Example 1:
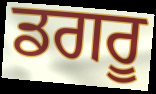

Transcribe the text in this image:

ਡਗਰੂ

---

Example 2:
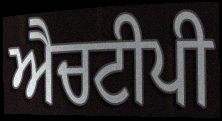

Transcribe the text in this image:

ਐਚਟੀਪੀ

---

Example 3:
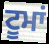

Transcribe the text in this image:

ਟੂਮਾਂ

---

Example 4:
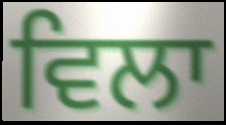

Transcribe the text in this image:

ਵਿਲਾ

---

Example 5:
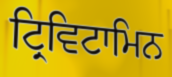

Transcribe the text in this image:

ਟ੍ਰਿਵਿਟਾਮਿਨ